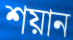
শয়ান